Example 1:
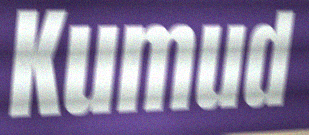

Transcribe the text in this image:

Kumud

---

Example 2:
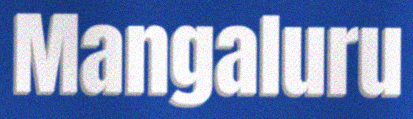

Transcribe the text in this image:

Mangaluru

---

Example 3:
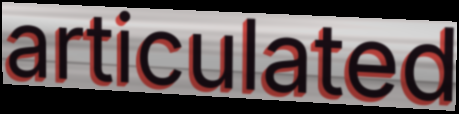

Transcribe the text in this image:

articulated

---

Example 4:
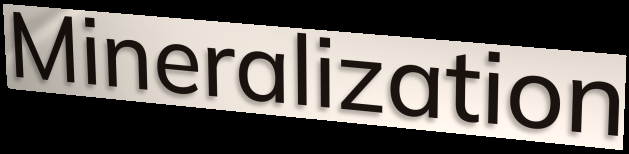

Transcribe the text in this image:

Mineralization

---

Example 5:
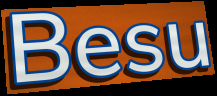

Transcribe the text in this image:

Besu